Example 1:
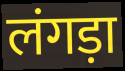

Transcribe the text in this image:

लंगड़ा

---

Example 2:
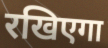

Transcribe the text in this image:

रखिएगा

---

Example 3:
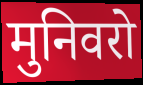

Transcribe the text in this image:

मुनिवरो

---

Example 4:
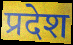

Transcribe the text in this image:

प्रदेश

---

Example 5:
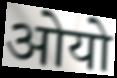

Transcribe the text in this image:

ओयो